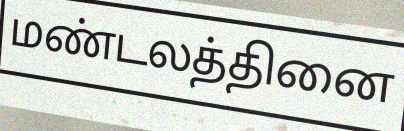
மண்டலத்தினை